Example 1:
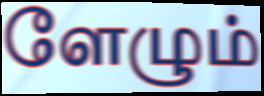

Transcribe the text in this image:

ளேழும்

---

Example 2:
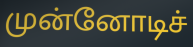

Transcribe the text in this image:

முன்னோடிச்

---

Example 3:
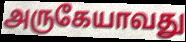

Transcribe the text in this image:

அருகேயாவது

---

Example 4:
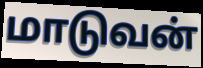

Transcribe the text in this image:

மாடுவன்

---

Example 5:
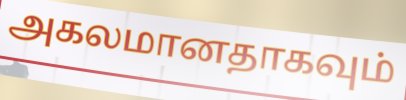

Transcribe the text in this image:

அகலமானதாகவும்